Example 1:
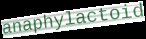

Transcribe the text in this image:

anaphylactoid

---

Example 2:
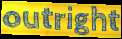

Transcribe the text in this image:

outright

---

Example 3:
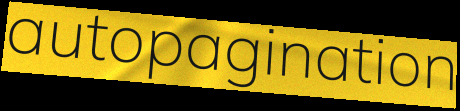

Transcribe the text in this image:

autopagination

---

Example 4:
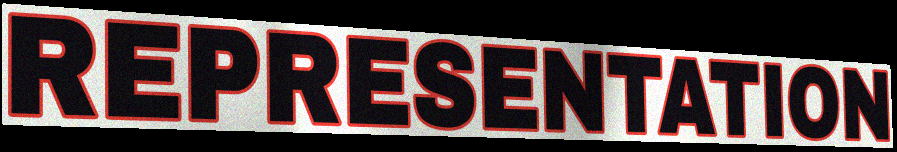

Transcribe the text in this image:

REPRESENTATION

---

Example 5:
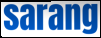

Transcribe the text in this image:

sarang